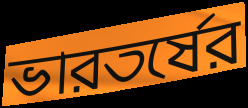
ভারতর্ষের